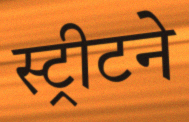
स्ट्रीटने